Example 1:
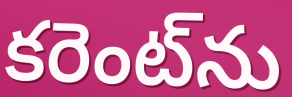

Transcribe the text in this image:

కరెంట్‌ను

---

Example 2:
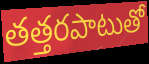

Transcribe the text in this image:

తత్తరపాటుతో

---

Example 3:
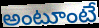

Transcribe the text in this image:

అంటూంటే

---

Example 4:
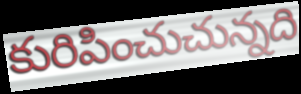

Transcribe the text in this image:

కురిపించుచున్నది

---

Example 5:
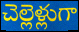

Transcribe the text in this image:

చెల్లెళ్లుగా